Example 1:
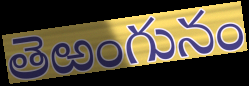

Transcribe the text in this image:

తెఱంగునం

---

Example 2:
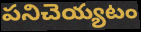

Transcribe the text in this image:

పనిచెయ్యటం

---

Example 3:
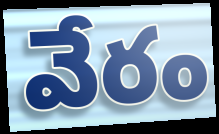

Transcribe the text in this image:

వేరం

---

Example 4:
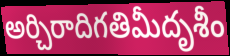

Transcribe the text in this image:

అర్చిరాదిగతిమీదృశీం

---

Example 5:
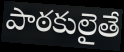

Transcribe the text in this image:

పాఠకులైతే